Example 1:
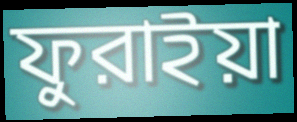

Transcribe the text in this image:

ফুরাইয়া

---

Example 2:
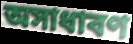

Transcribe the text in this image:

অসাধাবণ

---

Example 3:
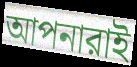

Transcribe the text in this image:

আপনারাই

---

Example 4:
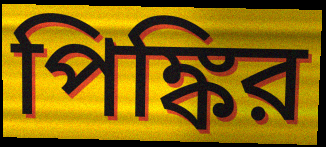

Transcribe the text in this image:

পিঙ্কির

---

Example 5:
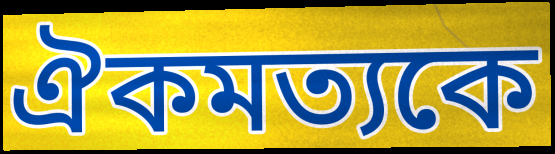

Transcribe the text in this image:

ঐকমত্যকে